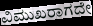
ವಿಮುಖರಾಗದೇ